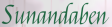
Sunandaben